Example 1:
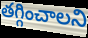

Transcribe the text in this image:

తగ్గించాలని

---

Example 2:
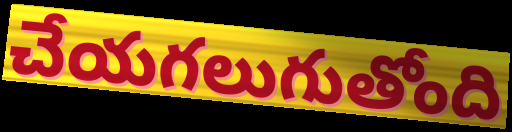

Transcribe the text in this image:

చేయగలుగుతోంది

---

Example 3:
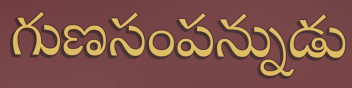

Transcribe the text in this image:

గుణసంపన్నుడు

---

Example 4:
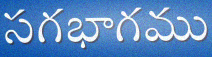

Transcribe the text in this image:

సగభాగము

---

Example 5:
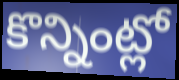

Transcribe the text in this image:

కొన్నింట్లో